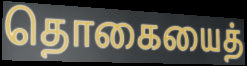
தொகையைத்